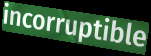
incorruptible